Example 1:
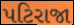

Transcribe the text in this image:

પટિરાજા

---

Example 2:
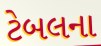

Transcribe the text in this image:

ટેબલના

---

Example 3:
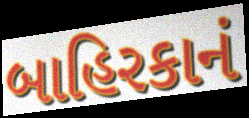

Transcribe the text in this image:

બાહિરકાનં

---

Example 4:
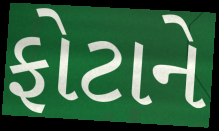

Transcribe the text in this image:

ફોટાને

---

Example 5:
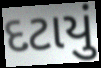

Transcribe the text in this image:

દટાયું